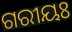
ଗରୀୟଃ